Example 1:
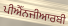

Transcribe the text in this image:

ਪੀਐੱਨਜੀਆਰਬੀ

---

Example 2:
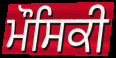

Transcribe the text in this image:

ਮੌਸਿਕੀ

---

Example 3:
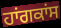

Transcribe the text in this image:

ਹਾਂਗਕਾਂਸ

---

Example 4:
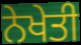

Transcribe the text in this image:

ਨੇਖੇਤੀ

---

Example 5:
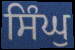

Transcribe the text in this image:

ਸਿੰਘੁ